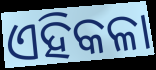
ଏହିକଳା